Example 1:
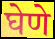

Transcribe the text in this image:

घेणे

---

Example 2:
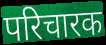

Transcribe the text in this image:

परिचारक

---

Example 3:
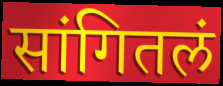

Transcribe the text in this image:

सांगितलं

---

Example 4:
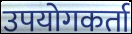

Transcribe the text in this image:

उपयोगकर्ता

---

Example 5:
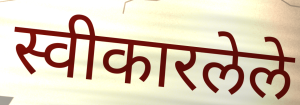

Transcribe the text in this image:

स्वीकारलेले